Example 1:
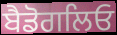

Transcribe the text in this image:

ਬੈਡੋਗਲਿਓ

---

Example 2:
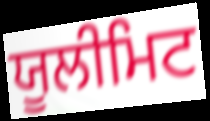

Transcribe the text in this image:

ਯੂਲੀਮਿਟ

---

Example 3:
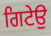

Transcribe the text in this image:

ਗਿਟੇਉ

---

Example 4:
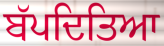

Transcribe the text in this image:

ਬੱਪਦਿਤਿਆ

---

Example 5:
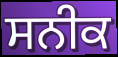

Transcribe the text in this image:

ਸਨੀਕ